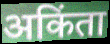
अकिंता